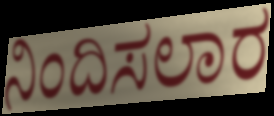
ನಿಂದಿಸಲಾರ